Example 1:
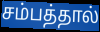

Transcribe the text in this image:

சம்பத்தால்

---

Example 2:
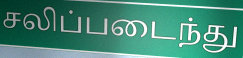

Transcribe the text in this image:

சலிப்படைந்து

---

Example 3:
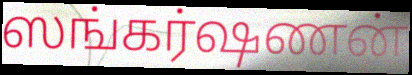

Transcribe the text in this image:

ஸங்கர்ஷணன்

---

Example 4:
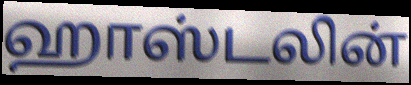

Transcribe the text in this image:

ஹாஸ்டலின்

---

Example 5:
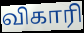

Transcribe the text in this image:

விகாரி